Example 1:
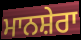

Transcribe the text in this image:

ਮਾਨਸ਼ੇਰਾ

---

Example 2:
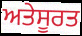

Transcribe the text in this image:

ਅਤੇਸੂਰਤ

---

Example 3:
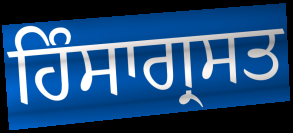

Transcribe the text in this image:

ਹਿੰਸਾਗ੍ਰਸਤ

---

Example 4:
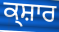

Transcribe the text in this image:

ਕ੍ਸ਼ਾਰ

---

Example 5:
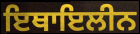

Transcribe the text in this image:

ਇਥਾਇਲੀਨ